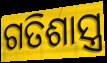
ଗତିଶାସ୍ତ୍ର